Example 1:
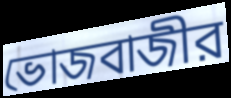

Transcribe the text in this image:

ভোজবাজীর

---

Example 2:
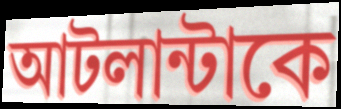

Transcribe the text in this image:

আটলান্টাকে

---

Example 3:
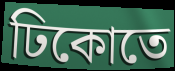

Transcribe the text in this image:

ঢিকোতে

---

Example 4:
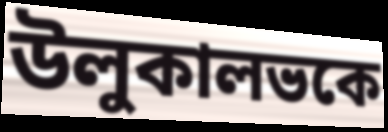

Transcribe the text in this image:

উলুকালভকে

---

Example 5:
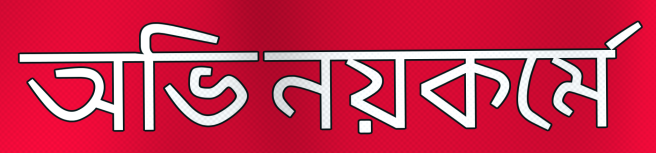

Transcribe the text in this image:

অভিনয়কর্মে